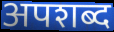
अपशब्द